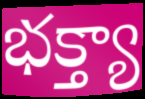
భక్త్యా